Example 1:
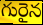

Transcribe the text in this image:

గురైన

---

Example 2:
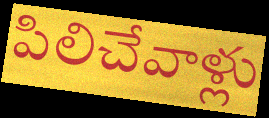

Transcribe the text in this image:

పిలిచేవాళ్లు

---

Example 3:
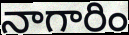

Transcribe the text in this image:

నాగారిం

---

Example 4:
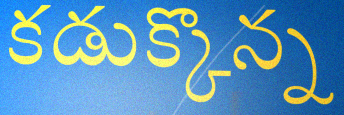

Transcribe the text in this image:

కడుక్కొన్న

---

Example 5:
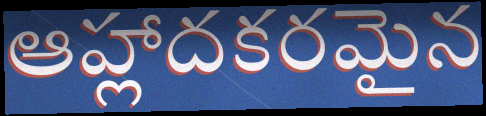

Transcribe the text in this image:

ఆహ్లాదకరమైన